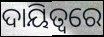
ଦାୟିତ୍ବରେ